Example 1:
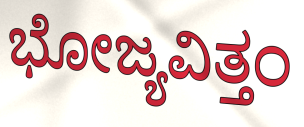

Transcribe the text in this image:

ಭೋಜ್ಯವಿತ್ತಂ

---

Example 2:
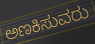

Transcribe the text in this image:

ಅಣಕಿಸುವರು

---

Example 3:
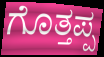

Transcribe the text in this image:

ಗೊತ್ತಪ್ಪ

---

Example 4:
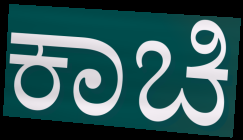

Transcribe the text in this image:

ಕಾಚಿ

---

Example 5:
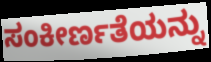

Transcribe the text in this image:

ಸಂಕೀರ್ಣತೆಯನ್ನು